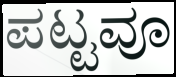
ಪಟ್ಟವೂ